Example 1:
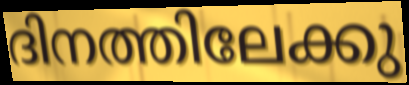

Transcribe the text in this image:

ദിനത്തിലേക്കു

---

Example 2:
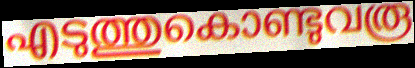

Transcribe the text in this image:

എടുത്തുകൊണ്ടുവരൂ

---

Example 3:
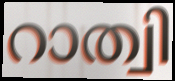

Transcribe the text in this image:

റാത്വി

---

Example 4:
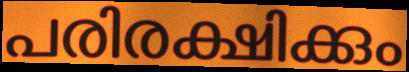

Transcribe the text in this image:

പരിരക്ഷിക്കും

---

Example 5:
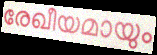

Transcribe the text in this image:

രേഖീയമായും